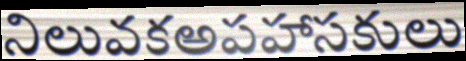
నిలువకఅపహాసకులు